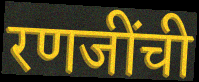
रणजींची